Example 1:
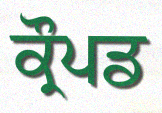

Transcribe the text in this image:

ਕ੍ਰੌਪਡ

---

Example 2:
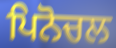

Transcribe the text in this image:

ਪਿਨੋਚਲ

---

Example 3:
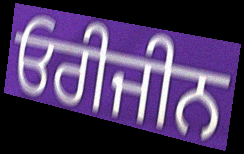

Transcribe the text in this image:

ਓਰੀਜੀਨ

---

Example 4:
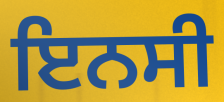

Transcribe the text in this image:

ਇਨਸੀ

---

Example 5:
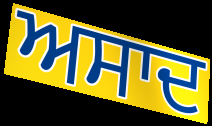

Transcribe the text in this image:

ਅਸਾਦ